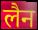
लैन